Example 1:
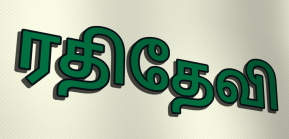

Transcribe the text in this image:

ரதிதேவி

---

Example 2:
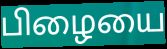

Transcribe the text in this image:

பிழையை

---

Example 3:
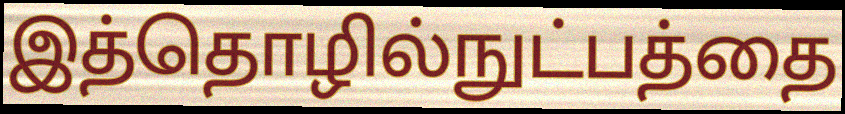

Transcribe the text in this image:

இத்தொழில்நுட்பத்தை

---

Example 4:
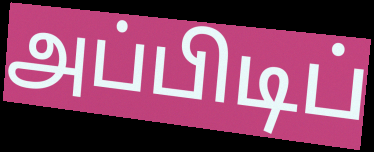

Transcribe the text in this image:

அப்பிடிப்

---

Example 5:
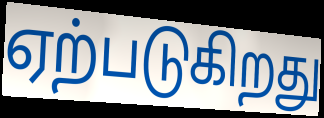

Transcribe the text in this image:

ஏற்படுகிறது